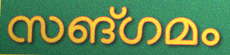
സങ്ഗമം